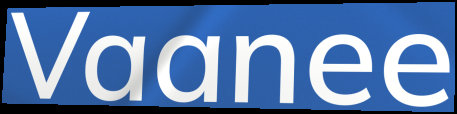
Vaanee